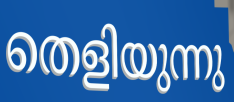
തെളിയുന്നു